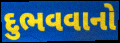
દુભવવાનો